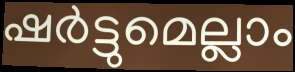
ഷർട്ടുമെല്ലാം